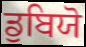
ਡੁਬਿਯੋ